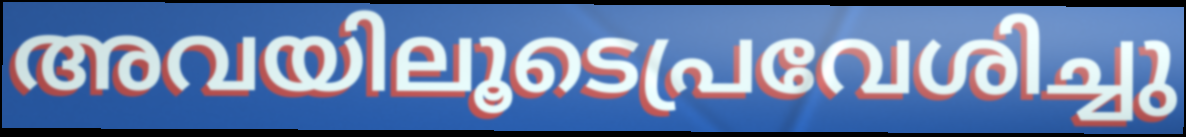
അവയിലൂടെപ്രവേശിച്ചു